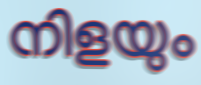
നിളയും